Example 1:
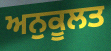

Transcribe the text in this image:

ਅਨੁਕੂਲਤ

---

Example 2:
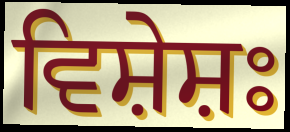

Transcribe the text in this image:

ਵਿਸ਼ੇਸ਼ਃ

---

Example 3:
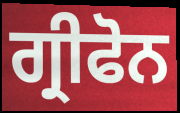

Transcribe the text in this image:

ਗ੍ਰੀਫੋਨ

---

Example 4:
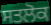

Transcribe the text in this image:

ਸਤਲੋਕ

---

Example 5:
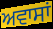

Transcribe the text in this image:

ਅਵਾਸਾਂ